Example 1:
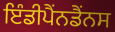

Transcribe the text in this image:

ਇੰਡੀਪੈਂਨਡੈਂਨਸ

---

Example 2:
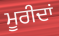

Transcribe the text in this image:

ਮੂਰੀਦਾਂ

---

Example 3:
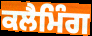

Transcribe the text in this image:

ਕਲੈਮਿੰਗ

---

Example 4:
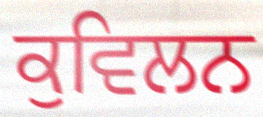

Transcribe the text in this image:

ਕੁਵਿਲਨ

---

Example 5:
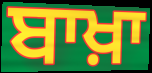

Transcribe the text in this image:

ਬਾਖ਼ਾ